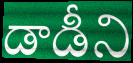
డాడీని